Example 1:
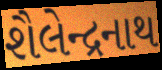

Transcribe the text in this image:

શૈલેન્દ્રનાથ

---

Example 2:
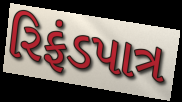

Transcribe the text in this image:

રિફંડપાત્ર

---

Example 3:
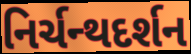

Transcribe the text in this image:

નિર્ચન્થદર્શન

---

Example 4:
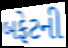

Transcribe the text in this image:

બફેટની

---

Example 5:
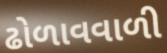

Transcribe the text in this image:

ઢોળાવવાળી